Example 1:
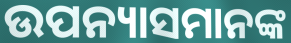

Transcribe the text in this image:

ଉପନ୍ୟାସମାନଙ୍କ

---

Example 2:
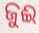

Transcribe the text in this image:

ଜୁଈ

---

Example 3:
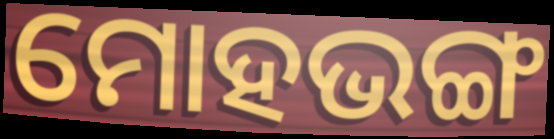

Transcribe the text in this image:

ମୋହଭଙ୍ଗ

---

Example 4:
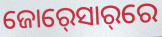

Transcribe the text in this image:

ଜୋର୍‍ସୋର୍‌ରେ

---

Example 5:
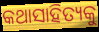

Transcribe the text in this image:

କଥାସାହିତ୍ୟକୁ